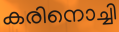
കരിനൊച്ചി